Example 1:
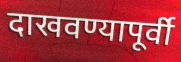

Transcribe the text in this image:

दाखवण्यापूर्वी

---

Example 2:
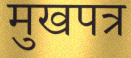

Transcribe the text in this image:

मुखपत्र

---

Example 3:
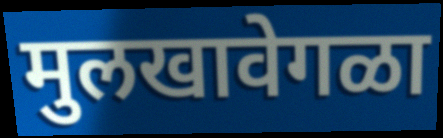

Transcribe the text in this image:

मुलखावेगळा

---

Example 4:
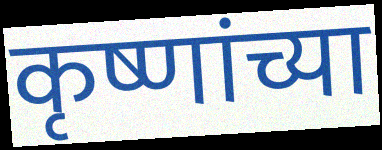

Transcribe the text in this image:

कृष्णांच्या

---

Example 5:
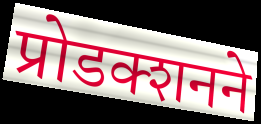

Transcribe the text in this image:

प्रोडक्शनने